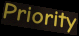
Priority